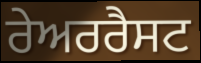
ਰੇਅਰਰੈਸਟ